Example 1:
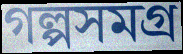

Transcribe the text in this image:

গল্পসমগ্র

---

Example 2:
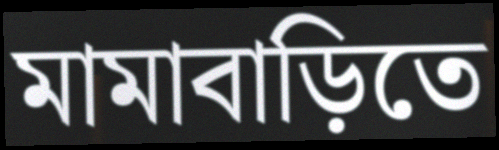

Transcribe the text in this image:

মামাবাড়িতে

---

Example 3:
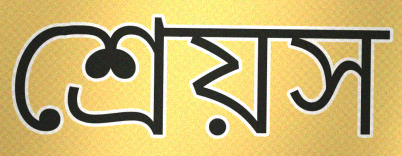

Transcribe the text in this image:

শ্রেয়স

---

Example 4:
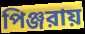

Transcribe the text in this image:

পিঞ্জরায়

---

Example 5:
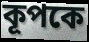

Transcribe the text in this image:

কূপকে